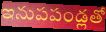
ఇనుపపండ్లతో